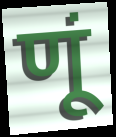
णूं